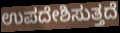
ಉಪದೇಶಿಸುತ್ತದೆ